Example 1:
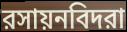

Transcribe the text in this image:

রসায়নবিদরা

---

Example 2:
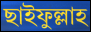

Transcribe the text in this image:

ছাইফুল্লাহ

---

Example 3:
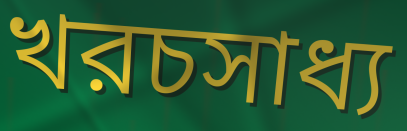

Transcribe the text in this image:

খরচসাধ্য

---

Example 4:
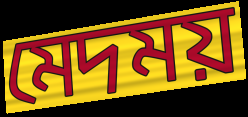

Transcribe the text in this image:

মেদময়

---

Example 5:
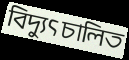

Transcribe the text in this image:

বিদ্যুৎচালিত